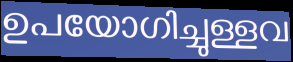
ഉപയോഗിച്ചുള്ളവ